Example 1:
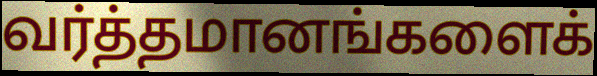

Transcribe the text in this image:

வர்த்தமானங்களைக்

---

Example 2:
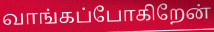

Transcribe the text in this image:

வாங்கப்போகிறேன்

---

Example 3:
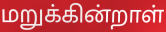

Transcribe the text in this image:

மறுக்கின்றாள்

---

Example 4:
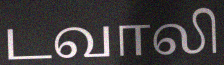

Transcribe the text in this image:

டவாலி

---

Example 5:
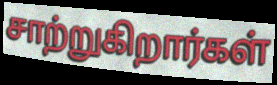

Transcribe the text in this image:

சாற்றுகிறார்கள்